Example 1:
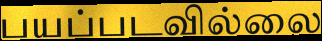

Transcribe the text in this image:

பயப்படவில்லை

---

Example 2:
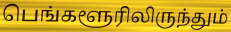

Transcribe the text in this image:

பெங்களூரிலிருந்தும்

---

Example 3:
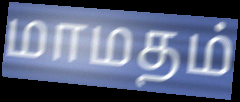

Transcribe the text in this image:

மாமதம்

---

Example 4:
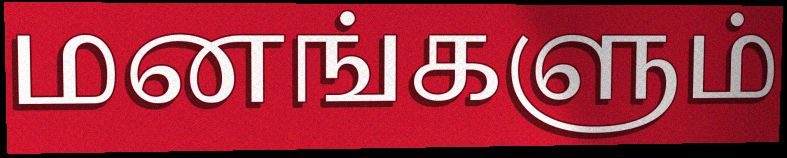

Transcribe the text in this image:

மனங்களும்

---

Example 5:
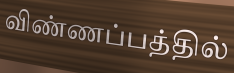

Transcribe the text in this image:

விண்ணப்பத்தில்